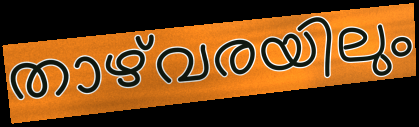
താഴ്‌വരയിലും